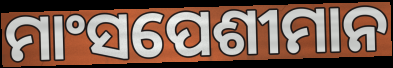
ମାଂସପେଶୀମାନ